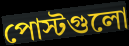
পোস্টগুলো